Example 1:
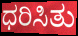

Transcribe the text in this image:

ಧರಿಸಿತು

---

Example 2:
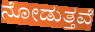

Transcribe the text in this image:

ನೋಡುತ್ತವೆ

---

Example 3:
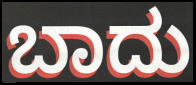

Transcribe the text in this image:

ಬಾದು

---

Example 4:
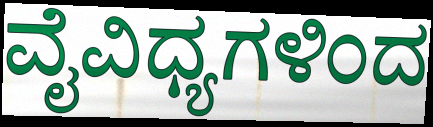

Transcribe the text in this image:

ವೈವಿಧ್ಯಗಳಿಂದ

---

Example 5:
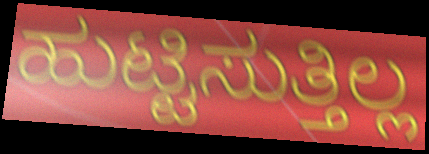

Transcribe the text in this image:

ಹುಟ್ಟಿಸುತ್ತಿಲ್ಲ